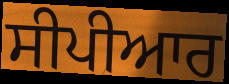
ਸੀਪੀਆਰ